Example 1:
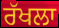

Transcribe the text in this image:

ਰੱਖਲਾ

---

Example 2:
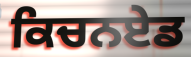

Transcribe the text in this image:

ਕਿਚਨਏਡ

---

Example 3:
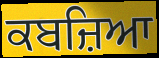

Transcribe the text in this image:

ਕਬਜ਼ਿਆ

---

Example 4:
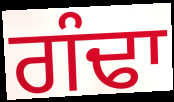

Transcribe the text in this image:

ਗੰਢਾ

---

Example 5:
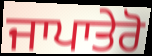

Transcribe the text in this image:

ਜਾਪਾਤੇਰੋ